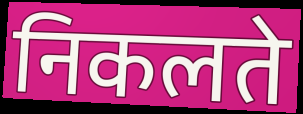
निकलते